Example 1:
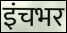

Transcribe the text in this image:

इंचभर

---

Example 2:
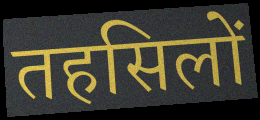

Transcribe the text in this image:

तहसिलों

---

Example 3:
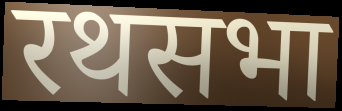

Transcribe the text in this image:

रथसभा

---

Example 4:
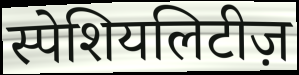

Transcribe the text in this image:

स्पेशियलिटीज़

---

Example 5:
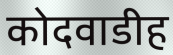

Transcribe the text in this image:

कोदवाडीह